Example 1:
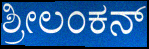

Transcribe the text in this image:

ಶ್ರೀಲಂಕನ್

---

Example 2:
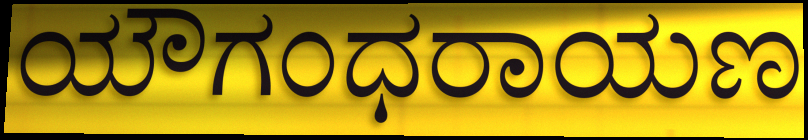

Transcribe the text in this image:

ಯೌಗಂಧರಾಯಣ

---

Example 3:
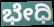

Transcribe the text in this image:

ಭೇಧಿ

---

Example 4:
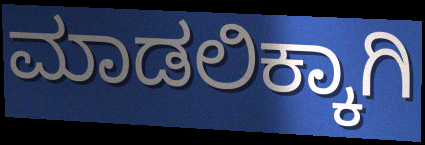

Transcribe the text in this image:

ಮಾಡಲಿಕ್ಕಾಗಿ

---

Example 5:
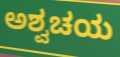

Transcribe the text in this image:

ಅಶ್ವಚಯ